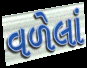
વળેલાં